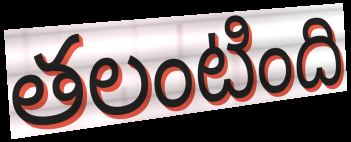
తలంటింది